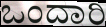
ಒಂದಾರಿ